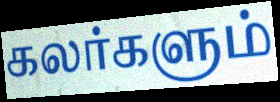
கலர்களும்